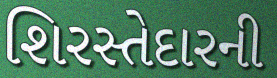
શિરસ્તેદારની